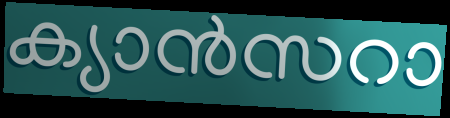
ക്യാൻസറാ